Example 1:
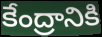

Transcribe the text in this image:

కేంద్రానికి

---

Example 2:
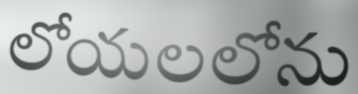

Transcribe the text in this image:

లోయలలోను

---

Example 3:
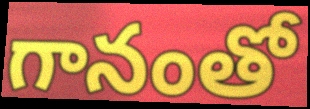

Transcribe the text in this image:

గానంతో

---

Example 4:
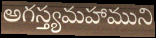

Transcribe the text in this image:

అగస్త్యమహాముని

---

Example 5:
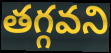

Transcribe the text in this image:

తగ్గవని